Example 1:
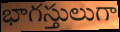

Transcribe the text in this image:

భాగస్తులుగా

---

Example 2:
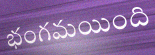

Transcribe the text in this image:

భంగమయింది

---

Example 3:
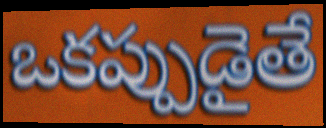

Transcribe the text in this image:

ఒకప్పుడైతే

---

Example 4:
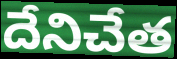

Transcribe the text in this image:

దేనిచేత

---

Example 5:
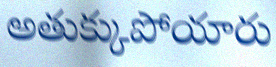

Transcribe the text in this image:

అతుక్కుపోయారు